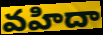
వహిదా